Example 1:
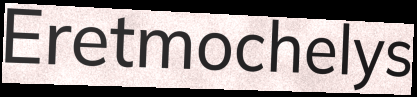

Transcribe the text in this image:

Eretmochelys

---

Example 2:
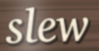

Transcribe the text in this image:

slew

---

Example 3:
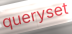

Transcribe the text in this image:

queryset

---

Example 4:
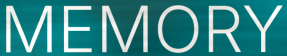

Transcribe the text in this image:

MEMORY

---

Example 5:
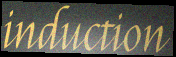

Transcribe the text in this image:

induction